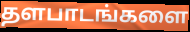
தளபாடங்களை